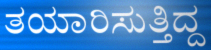
ತಯಾರಿಸುತ್ತಿದ್ದ